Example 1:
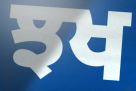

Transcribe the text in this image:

ਝਖ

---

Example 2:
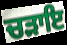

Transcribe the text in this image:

ਚੜਾਇ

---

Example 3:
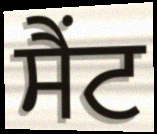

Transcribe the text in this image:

ਸੈਂਟ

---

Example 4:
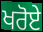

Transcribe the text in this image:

ਖਰੋਏ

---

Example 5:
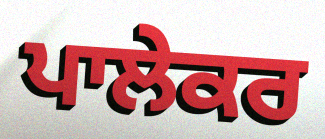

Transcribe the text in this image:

ਪਾਲੇਕਰ